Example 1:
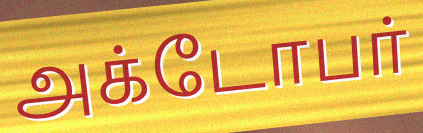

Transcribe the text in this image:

அக்டோபர்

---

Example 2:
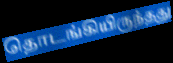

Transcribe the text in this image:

தொடங்கியிருந்தது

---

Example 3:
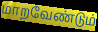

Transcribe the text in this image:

மாறவேண்டும்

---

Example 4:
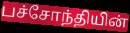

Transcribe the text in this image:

பச்சோந்தியின்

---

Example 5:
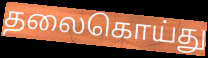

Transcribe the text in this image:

தலைகொய்து